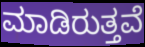
ಮಾಡಿರುತ್ತವೆ